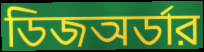
ডিজঅর্ডার